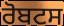
ਰੋਬਟਸ